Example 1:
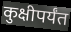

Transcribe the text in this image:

कुक्षीपर्यंत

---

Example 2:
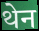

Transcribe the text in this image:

थेन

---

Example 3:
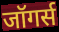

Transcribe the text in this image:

जॉगर्स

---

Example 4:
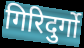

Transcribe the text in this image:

गिरिदुर्गो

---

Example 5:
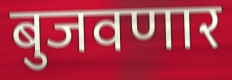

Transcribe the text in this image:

बुजवणार